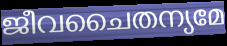
ജീവചൈതന്യമേ